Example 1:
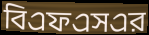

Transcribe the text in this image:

বিএফএসএর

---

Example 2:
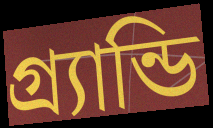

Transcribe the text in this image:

গ্র্যান্ডি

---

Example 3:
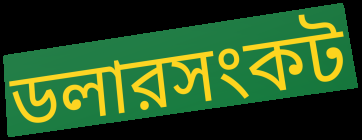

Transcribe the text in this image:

ডলারসংকট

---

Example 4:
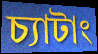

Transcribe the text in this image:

চ্যাটাং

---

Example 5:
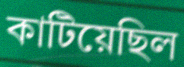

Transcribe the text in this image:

কাটিয়েছিল